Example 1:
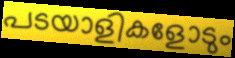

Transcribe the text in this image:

പടയാളികളോടും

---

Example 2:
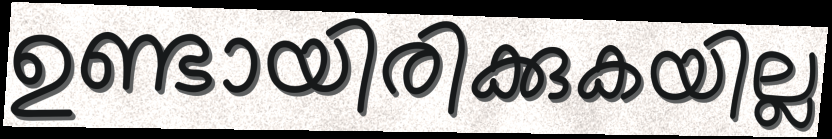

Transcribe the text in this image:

ഉണ്ടായിരിക്കുകയില്ല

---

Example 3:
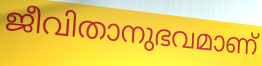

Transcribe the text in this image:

ജീവിതാനുഭവമാണ്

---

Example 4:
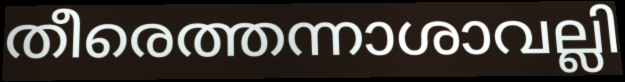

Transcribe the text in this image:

തീരെത്തന്നാശാവല്ലി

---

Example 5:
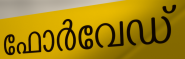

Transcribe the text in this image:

ഫോർവേഡ്